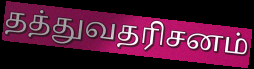
தத்துவதரிசனம்